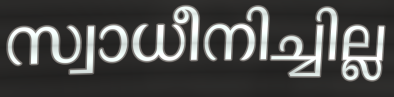
സ്വാധീനിച്ചില്ല